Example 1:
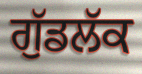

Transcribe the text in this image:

ਗੁੱਡਲੱਕ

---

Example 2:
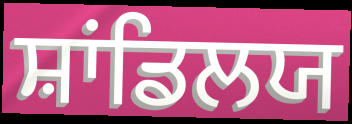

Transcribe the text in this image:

ਸ਼ਾਂਡਿਲਯ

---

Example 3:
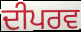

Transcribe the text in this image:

ਦੀਪਰਵ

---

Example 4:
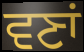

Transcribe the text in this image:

ਵਣਾਂ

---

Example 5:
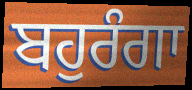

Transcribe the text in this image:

ਬਹੁਰੰਗਾ